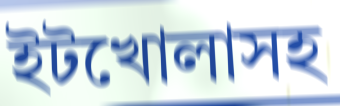
ইটখোলাসহ